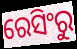
ରେସିଂରୁ